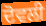
ਦੋਵਲੀ